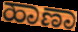
ಹಾಣಾ